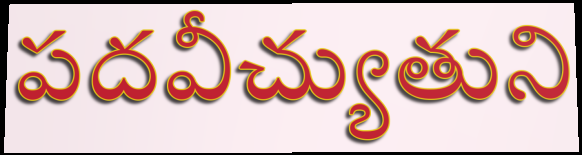
పదవీచ్యుతుని